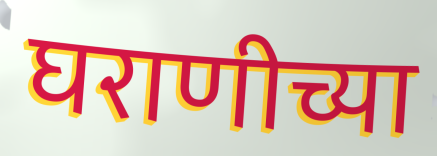
घराणीच्या